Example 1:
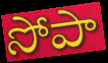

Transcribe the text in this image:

సోపా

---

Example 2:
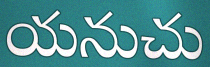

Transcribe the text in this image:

యనుచు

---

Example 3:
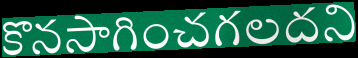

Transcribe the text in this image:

కొనసాగించగలదని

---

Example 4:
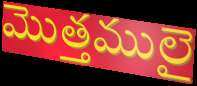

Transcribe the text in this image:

మొత్తములై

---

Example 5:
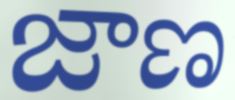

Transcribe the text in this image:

జాణ